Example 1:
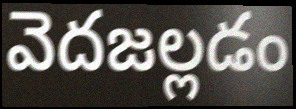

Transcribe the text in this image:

వెదజల్లడం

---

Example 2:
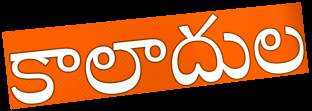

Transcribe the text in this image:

కాలాదుల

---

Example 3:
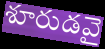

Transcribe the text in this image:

శూరుడవై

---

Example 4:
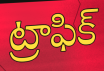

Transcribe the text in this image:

ట్రాఫిక్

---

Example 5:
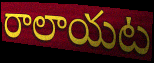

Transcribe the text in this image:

రాలాయట